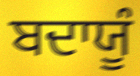
ਬਦਾਯੂੰ